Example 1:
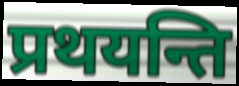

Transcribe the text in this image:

प्रथयन्ति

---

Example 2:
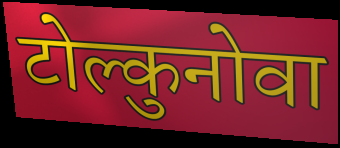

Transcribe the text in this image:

टोल्कुनोवा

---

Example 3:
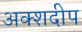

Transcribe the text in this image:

अक्शदीप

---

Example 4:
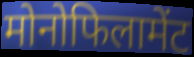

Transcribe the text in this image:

मोनोफिलामेंट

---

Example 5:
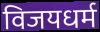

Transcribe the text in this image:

विजयधर्म